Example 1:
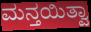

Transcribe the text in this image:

ಮನ್ತಯಿತ್ವಾ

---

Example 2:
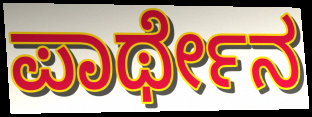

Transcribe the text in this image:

ಪಾರ್ಥೇನ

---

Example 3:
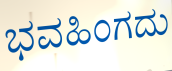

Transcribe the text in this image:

ಭವಹಿಂಗದು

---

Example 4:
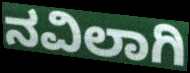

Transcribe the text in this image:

ನವಿಲಾಗಿ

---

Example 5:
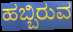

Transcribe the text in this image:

ಹಬ್ಬಿರುವ